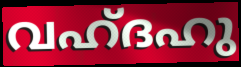
വഹ്ദഹു